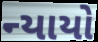
ન્યાયો